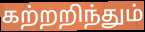
கற்றறிந்தும்